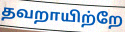
தவறாயிற்றே